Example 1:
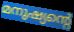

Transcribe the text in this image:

മനുഷ്യന്റെ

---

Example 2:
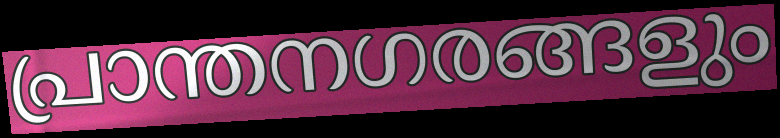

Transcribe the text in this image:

പ്രാന്തനഗരങ്ങളും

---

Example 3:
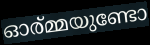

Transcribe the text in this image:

ഓര്മ്മയുണ്ടോ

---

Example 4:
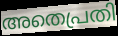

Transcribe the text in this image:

അതെപ്രതി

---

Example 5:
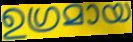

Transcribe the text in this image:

ഉഗ്രമായ